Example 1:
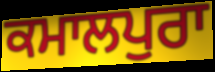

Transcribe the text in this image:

ਕਮਾਲਪੁਰਾ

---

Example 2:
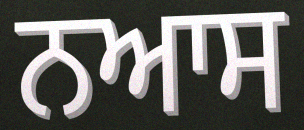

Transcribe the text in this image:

ਨਆਸ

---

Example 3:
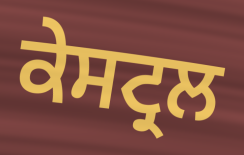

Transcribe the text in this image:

ਕੇਸਟ੍ਰਲ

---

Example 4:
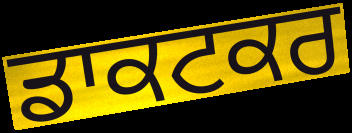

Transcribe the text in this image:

ਡਾਕਟਕਰ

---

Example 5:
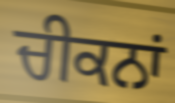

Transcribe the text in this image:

ਚੀਕਨਾਂ